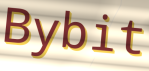
Bybit